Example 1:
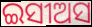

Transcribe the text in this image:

ଇସୀଅସ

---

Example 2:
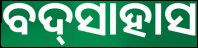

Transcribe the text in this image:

ବଦ୍‌ସାହାସ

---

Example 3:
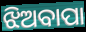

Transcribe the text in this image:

ଝିଅବାପା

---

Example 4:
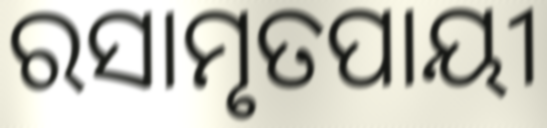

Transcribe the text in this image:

ରସାମୃତପାୟୀ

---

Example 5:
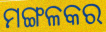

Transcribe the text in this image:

ମଙ୍ଗଳକର